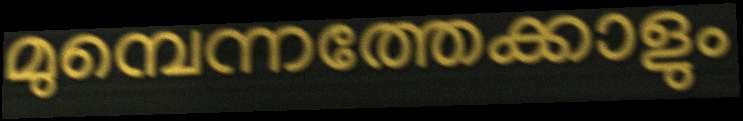
മുമ്പെന്നത്തേക്കാളും